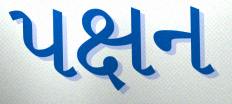
પક્ષન